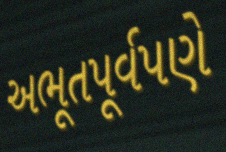
અભૂતપૂર્વપણે